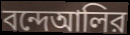
বন্দেআলির